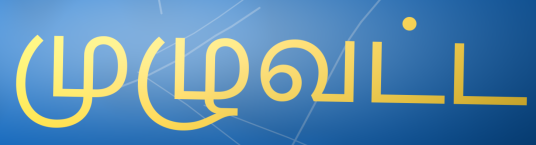
முழுவட்ட